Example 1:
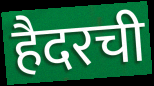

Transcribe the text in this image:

हैदरची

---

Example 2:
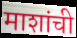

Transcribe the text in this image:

माशांची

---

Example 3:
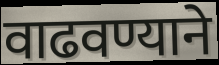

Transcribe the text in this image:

वाढवण्याने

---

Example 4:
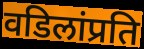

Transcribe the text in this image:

वडिलांप्रति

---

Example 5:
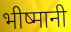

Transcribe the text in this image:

भीष्मानी